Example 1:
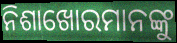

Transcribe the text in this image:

ନିଶାଖୋରମାନଙ୍କୁ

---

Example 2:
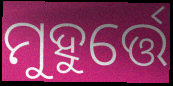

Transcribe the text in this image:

ମୁହୁର୍ତ୍ତେ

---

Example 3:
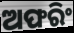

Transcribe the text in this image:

ଅଫରିଂ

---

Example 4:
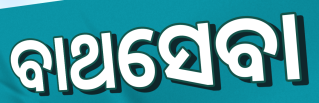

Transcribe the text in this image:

ବାଥସେବା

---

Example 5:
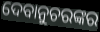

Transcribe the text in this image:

ଦେବାନୁଚରଙ୍କର